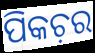
ପିକଚ଼ର